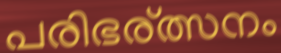
പരിഭര്ത്സനം